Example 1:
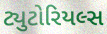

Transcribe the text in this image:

ટ્યુટોરિયલ્સ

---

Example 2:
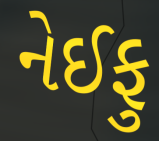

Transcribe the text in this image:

નેઈફુ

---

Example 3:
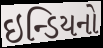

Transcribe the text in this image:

ઇન્ડિયનો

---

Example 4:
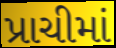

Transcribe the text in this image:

પ્રાચીમાં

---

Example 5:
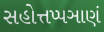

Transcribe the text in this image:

સહોત્તપ્પઞાણં